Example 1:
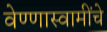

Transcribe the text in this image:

वेण्णास्वामींचे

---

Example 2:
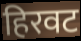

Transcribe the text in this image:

हिरवट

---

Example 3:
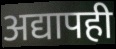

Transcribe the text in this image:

अद्यापही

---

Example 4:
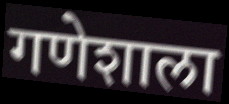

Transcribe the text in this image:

गणेशाला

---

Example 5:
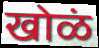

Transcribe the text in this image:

खोळं